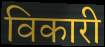
विकारी